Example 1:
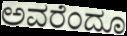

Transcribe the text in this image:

ಅವರೆಂದೂ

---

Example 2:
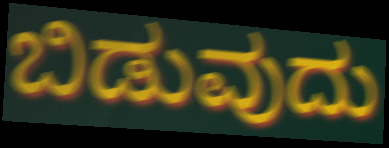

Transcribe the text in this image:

ಬಿಡುವುದು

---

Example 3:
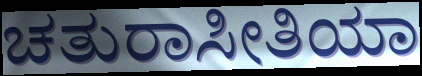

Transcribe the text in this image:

ಚತುರಾಸೀತಿಯಾ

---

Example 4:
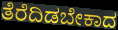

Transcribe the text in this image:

ತೆರೆದಿಡಬೇಕಾದ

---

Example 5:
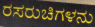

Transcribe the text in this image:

ರಸರುಚಿಗಳನು